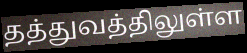
தத்துவத்திலுள்ள